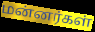
மன்னர்கள்